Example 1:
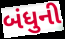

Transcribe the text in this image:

બંધુની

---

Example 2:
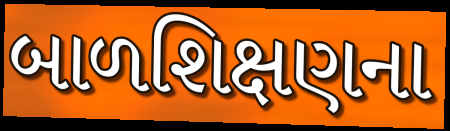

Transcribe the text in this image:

બાળશિક્ષણના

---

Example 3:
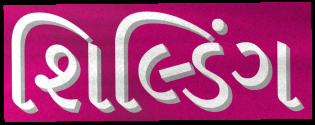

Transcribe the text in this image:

શિલ્ડિંગ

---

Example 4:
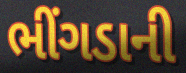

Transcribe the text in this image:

ભીંગડાની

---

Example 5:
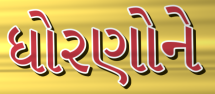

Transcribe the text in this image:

ધોરણોને